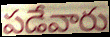
పడేవారు